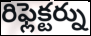
రిఫ్లెక్టర్ను